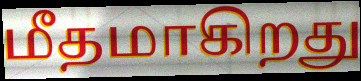
மீதமாகிறது